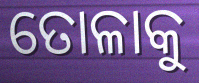
ତୋଳାକୁ